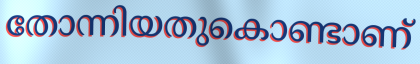
തോന്നിയതുകൊണ്ടാണ്